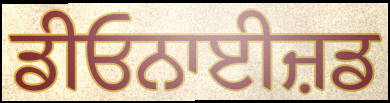
ਡੀਓਨਾਈਜ਼ਡ